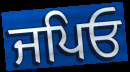
ਜਪਿਓ